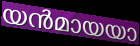
യൻമായയാ